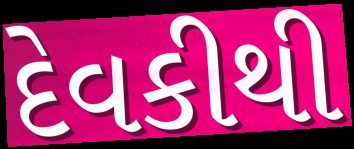
દેવકીથી